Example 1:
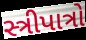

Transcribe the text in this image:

સ્ત્રીપાત્રો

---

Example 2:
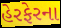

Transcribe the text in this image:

હેરફેરના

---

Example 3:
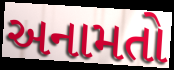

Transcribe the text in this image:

અનામતો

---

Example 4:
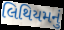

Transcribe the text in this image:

લિથિયમનું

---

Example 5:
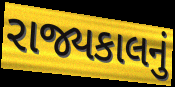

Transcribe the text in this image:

રાજ્યકાલનું